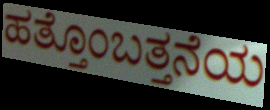
ಹತ್ತೊಂಬತ್ತನೆಯ